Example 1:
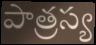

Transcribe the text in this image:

పాత్రస్య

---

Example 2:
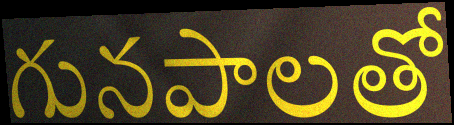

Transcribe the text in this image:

గునపాలతో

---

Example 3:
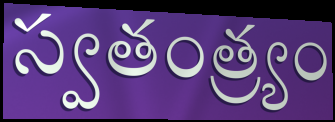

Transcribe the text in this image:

స్వతంత్ర్యం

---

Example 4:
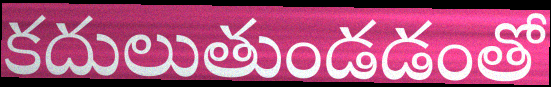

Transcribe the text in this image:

కదులుతుండడంతో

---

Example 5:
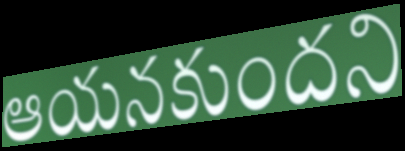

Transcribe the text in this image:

ఆయనకుందని